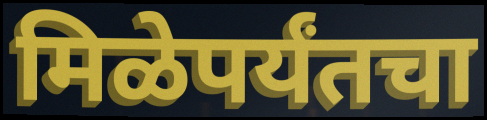
मिळेपर्यंतचा